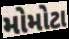
મોમોટા